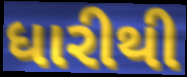
ધારીથી